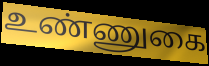
உண்ணுகை